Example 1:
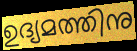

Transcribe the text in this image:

ഉദ്യമത്തിനു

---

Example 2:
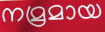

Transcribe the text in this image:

നമ്രമായ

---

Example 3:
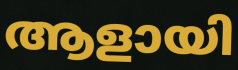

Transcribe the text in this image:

ആളായി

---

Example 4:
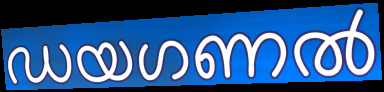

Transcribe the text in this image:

ഡയഗണൽ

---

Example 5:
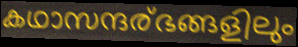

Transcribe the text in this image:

കഥാസന്ദര്ഭങ്ങളിലും